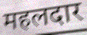
महलदार